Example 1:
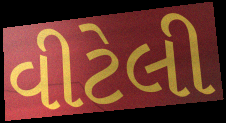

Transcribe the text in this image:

વીટેલી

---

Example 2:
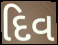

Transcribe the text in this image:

દિવ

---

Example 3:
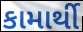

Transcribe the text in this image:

કામાર્થી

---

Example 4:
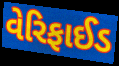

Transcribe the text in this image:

વેરિફાઈડ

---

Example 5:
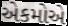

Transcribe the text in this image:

એકમોએ